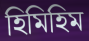
হিমিহিম